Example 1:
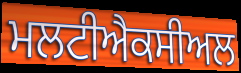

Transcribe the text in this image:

ਮਲਟੀਐਕਸੀਅਲ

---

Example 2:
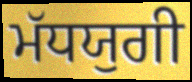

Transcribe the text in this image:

ਮੱਧਯੁਗੀ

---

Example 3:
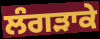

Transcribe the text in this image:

ਲੰਗੜਾਕੇ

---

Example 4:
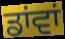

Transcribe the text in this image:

ਡਾਂਵਾਂ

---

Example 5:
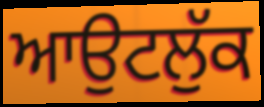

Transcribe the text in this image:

ਆਉਟਲੁੱਕ